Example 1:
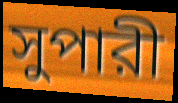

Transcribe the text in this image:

সুপারী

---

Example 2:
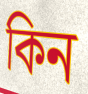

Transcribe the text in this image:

কিন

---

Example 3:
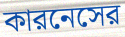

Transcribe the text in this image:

কারনেসের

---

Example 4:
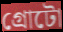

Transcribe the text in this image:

গ্রোটো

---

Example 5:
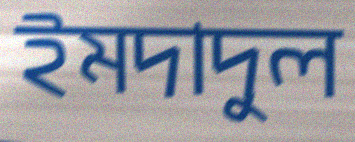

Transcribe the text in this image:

ইমদাদুল